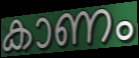
കാണം